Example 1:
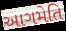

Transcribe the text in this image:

આગમેતિ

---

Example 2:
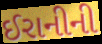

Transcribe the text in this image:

ઈરાનીની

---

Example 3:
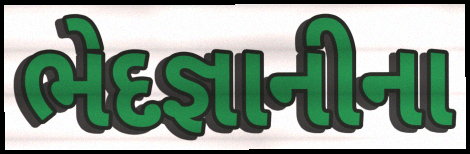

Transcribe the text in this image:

ભેદજ્ઞાનીના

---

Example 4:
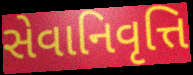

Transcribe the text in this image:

સેવાનિવૃત્તિ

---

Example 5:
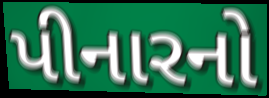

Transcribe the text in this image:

પીનારનો